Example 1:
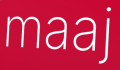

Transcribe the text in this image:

maaj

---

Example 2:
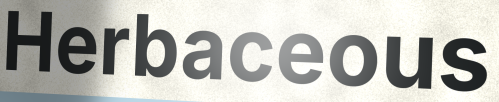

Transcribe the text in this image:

Herbaceous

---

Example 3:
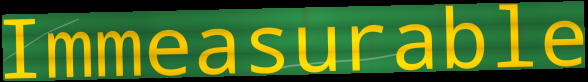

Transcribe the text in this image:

Immeasurable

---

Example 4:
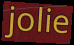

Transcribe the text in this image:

jolie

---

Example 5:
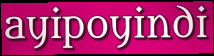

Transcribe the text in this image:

ayipoyindi